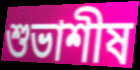
শুভাশীষ